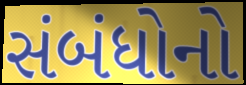
સંબંધોનો